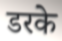
डरके